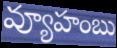
వ్యూహంబు